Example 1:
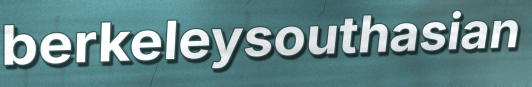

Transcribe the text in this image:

berkeleysouthasian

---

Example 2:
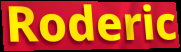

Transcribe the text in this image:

Roderic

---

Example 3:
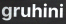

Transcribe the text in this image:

gruhini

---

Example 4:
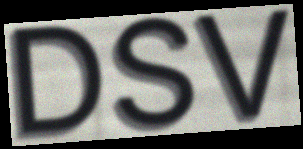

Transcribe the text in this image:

DSV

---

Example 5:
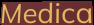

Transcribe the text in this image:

Medica